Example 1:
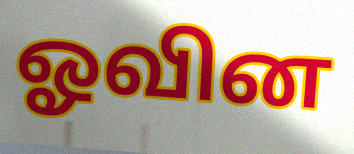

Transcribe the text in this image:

ஓவின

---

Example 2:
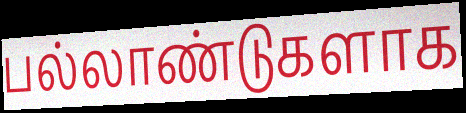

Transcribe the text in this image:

பல்லாண்டுகளாக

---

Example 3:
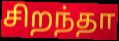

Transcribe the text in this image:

சிறந்தா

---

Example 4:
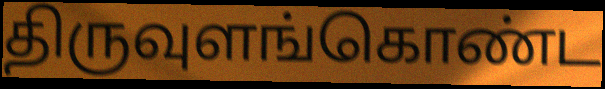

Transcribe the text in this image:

திருவுளங்கொண்ட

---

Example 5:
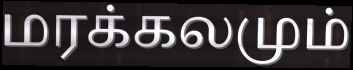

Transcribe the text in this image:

மரக்கலமும்